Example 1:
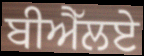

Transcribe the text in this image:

ਬੀਐੱਲਏ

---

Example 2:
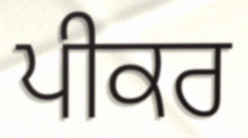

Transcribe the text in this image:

ਪੀਕਰ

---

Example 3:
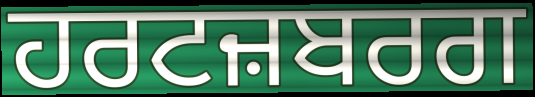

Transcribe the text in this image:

ਹਰਟਜ਼ਬਰਗ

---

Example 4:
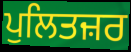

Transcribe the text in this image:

ਪੁਲਿਤਜ਼ਰ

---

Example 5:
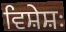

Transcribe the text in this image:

ਵਿਸ਼ੇਸ਼ਃ